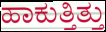
ಹಾಕುತ್ತಿತ್ತು